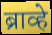
ब्राव्हे